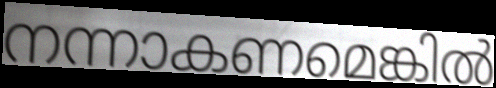
നന്നാകണമെങ്കിൽ